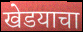
खेडयाचा